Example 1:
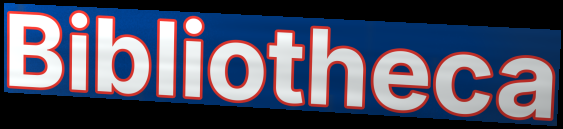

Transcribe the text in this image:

Bibliotheca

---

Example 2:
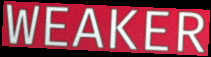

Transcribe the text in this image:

WEAKER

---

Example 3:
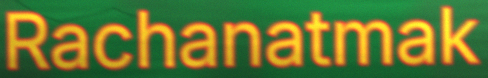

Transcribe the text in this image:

Rachanatmak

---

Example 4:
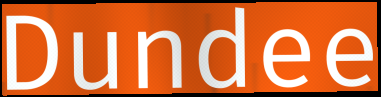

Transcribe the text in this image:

Dundee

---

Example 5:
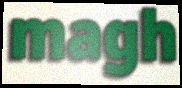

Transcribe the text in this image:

magh